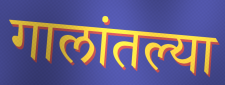
गालांतल्या